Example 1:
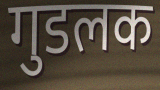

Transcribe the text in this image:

गुडलक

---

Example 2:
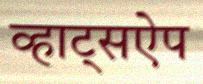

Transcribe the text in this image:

व्हाट्सऐप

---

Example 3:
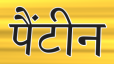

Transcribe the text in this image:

पैंटीन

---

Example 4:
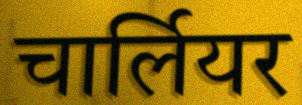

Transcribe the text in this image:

चार्लियर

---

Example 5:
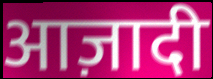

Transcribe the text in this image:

आज़ादी